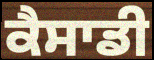
ਕੈਸਾਡੀ